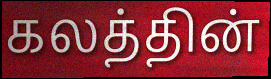
கலத்தின்